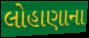
લોહાણાના